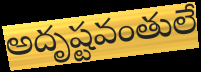
అదృష్టవంతులే